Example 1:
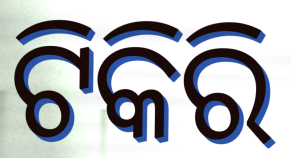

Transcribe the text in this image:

ଟିକିରି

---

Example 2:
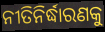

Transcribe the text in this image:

ନୀତିନିର୍ଦ୍ଧାରଣକୁ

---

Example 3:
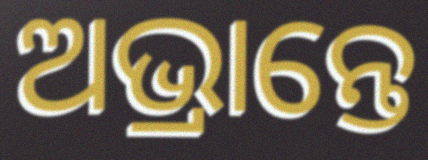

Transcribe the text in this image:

ଅଭ୍ରାନ୍ତେ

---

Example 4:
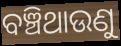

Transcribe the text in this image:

ବଞ୍ଚିଥାଉଣୁ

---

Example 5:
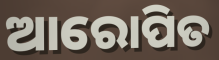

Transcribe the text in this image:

ଆରୋପିତ